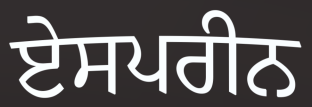
ਏਸਪਰੀਨ